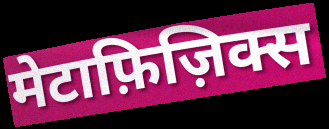
मेटाफ़िज़िक्स